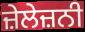
ਜ਼ੇਲੇਜ਼ਨੀ